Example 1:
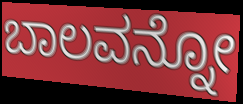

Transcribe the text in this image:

ಬಾಲವನ್ನೋ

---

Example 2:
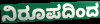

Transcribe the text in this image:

ನಿರೂಪದಿಂದ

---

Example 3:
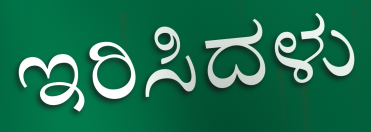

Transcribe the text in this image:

ಇರಿಸಿದಳು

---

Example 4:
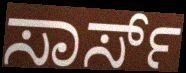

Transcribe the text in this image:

ಸಾರ್ಸ್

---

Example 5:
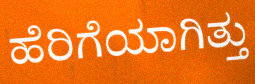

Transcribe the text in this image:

ಹೆರಿಗೆಯಾಗಿತ್ತು